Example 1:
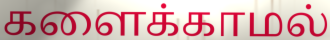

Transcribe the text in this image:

களைக்காமல்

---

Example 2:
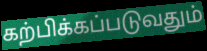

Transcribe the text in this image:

கற்பிக்கப்படுவதும்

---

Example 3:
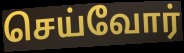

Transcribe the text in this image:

செய்வோர்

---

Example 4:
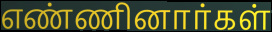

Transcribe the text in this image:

எண்ணினார்கள்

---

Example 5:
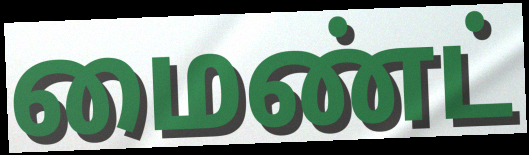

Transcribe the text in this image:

மைண்ட்